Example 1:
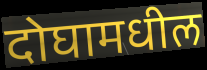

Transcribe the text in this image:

दोघामधील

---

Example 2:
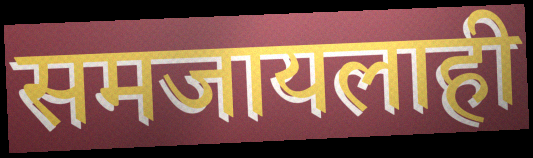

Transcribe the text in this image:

समजायलाही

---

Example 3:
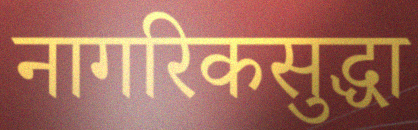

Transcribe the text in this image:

नागरिकसुद्धा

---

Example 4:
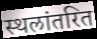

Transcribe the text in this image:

स्थलांतरित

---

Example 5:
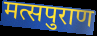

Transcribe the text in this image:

मत्सपुराण